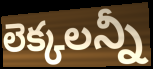
లెక్కలన్నీ